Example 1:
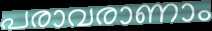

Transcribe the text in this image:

പരാവരാണാം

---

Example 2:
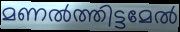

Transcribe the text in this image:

മണൽത്തിട്ടമേൽ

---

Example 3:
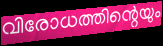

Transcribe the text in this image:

വിരോധത്തിന്റെയും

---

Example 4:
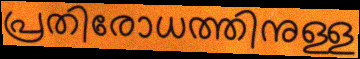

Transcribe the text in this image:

പ്രതിരോധത്തിനുള്ള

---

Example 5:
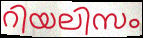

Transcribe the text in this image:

റിയലിസം